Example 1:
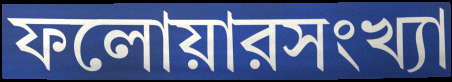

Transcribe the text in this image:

ফলোয়ারসংখ্যা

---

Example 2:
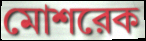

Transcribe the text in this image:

মোশরেক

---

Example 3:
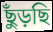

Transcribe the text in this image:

ছুঁড়ছি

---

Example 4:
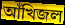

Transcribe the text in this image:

আঁখিজল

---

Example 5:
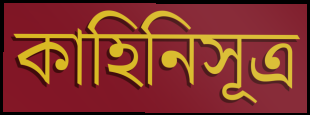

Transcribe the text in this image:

কাহিনিসূত্র